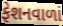
ફેશનવાળાં